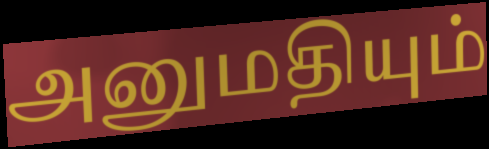
அனுமதியும்